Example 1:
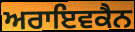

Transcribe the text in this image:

ਅਰਾਇਵਕੈਨ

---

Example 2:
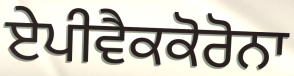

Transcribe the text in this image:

ਏਪੀਵੈਕਕੋਰੋਨਾ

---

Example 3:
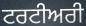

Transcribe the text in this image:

ਟਰਟੀਅਰੀ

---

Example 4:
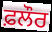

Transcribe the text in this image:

ਫ਼ਲੌਰ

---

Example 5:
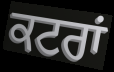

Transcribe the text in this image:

ਕਟਰਾਂ